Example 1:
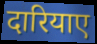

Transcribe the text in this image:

दारियाए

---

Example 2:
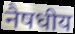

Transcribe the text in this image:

नैषधीय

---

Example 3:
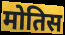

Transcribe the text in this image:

मोतिस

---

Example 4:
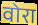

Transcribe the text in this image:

वोरा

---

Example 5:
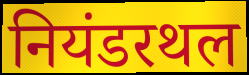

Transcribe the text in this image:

नियंडरथल